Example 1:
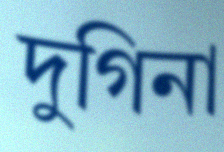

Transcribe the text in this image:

দুগিনা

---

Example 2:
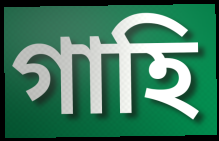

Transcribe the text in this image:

গাহি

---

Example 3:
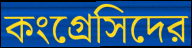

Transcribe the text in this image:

কংগ্রেসিদের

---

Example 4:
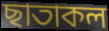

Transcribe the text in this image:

ছাতাকল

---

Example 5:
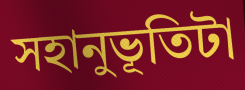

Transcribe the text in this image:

সহানুভূতিটা